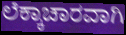
ಲೆಕ್ಕಾಚಾರವಾಗಿ